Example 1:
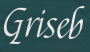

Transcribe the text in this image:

Griseb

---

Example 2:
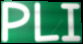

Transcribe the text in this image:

PLI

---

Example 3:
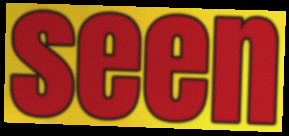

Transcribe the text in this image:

seen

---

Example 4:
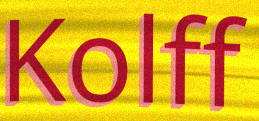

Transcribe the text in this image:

Kolff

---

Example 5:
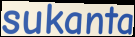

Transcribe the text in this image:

sukanta